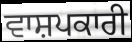
ਵਾਸ਼ਪਕਾਰੀ